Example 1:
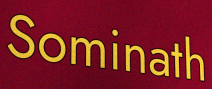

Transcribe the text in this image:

Sominath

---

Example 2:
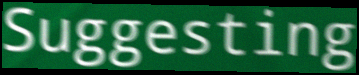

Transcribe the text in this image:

Suggesting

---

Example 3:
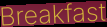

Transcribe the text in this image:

Breakfast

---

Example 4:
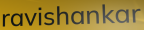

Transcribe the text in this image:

ravishankar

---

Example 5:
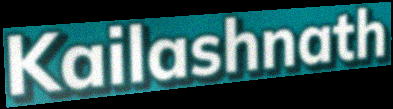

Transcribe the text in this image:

Kailashnath